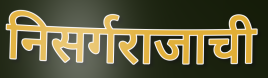
निसर्गराजाची